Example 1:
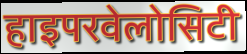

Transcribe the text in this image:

हाइपरवेलोसिटी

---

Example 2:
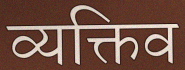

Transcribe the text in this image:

व्यक्तिव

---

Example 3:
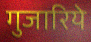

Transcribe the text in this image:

गुजारिये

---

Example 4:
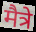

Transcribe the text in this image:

मैत्रे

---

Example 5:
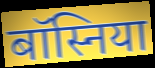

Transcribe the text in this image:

बॉस्निया